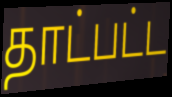
தாட்பட்ட